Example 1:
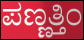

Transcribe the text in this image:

ಪಣ್ಣತ್ತಿಂ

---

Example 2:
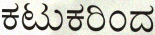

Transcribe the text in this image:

ಕಟುಕರಿಂದ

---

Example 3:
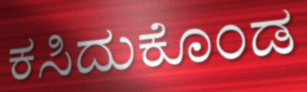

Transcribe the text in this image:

ಕಸಿದುಕೊಂಡ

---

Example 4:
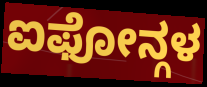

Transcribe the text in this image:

ಐಫೋನ್ಗಳ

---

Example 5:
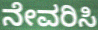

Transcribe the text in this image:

ನೇವರಿಸಿ